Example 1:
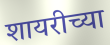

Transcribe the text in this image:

शायरीच्या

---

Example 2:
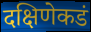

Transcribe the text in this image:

दक्षिणेकडं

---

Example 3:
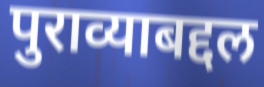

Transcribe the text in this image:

पुराव्याबद्दल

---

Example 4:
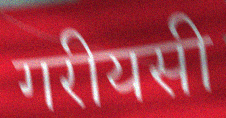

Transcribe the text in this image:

गरीयसी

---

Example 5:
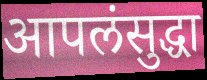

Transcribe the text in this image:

आपलंसुद्धा